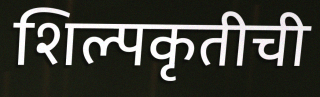
शिल्पकृतीची